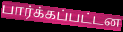
பார்க்கப்பட்டன